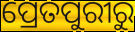
ପ୍ରେତପୁରୀରୁ